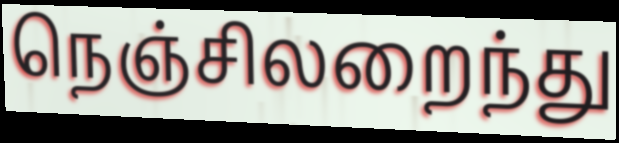
நெஞ்சிலறைந்து